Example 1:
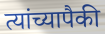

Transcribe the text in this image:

त्यांच्यापैकी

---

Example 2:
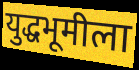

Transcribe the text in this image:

युद्धभूमीला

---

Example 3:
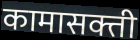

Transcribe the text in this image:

कामासक्ती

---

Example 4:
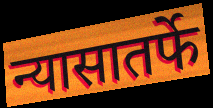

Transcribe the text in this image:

न्यासातर्फे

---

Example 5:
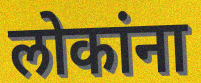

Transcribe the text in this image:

लोकांना